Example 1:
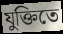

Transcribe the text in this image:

যুক্তিতে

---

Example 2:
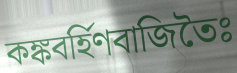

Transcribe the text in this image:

কঙ্কবর্হিণবাজিতৈঃ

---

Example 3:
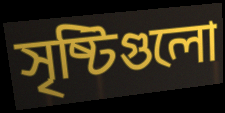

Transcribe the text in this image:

সৃষ্টিগুলো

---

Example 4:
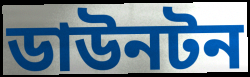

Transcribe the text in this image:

ডাউনটন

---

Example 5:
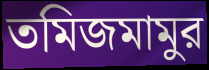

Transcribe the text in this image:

তমিজমামুর